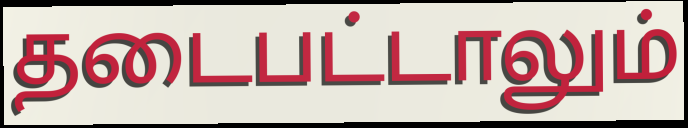
தடைபட்டாலும்